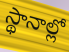
స్థానాల్లో